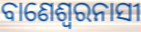
ବାଣେଶ୍ୱରନାସୀ